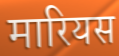
मारियस